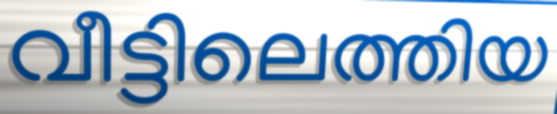
വീട്ടിലെത്തിയ